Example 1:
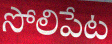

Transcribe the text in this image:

సోలిపేట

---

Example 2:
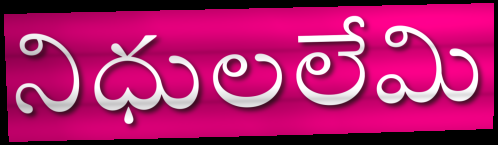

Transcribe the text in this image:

నిధులలేమి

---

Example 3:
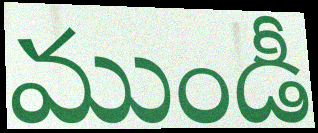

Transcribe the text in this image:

ముండీ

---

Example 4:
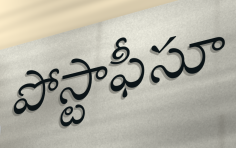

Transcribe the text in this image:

పోస్టాఫీసూ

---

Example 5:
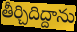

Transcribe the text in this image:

తీర్చిదిద్దాను